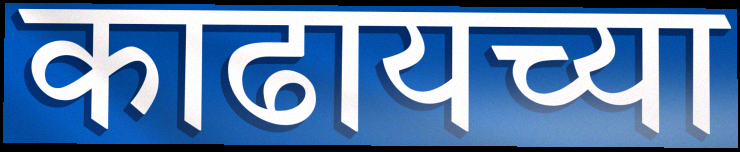
काढायच्या